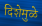
दिशेमुळे